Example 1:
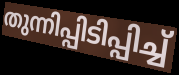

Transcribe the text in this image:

തുന്നിപ്പിടിപ്പിച്ച്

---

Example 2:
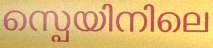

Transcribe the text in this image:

സ്പെയിനിലെ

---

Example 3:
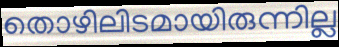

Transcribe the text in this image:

തൊഴിലിടമായിരുന്നില്ല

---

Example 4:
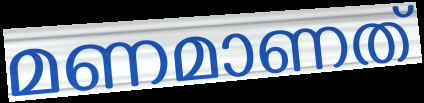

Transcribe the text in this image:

മണമാണത്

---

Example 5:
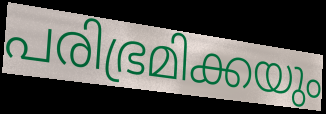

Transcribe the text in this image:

പരിഭ്രമിക്കയും